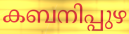
കബനിപ്പുഴ